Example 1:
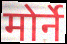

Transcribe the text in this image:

मोर्ने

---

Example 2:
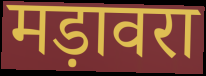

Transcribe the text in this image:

मड़ावरा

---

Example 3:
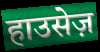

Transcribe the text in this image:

हाउसेज़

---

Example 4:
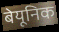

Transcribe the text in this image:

बेयूनिक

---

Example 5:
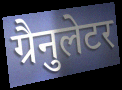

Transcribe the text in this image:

ग्रैनुलेटर